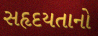
સહૃદયતાનો